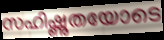
സഹിഷ്ണുതയോടെ